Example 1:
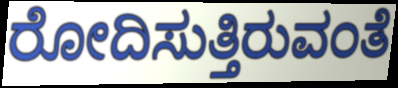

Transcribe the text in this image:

ರೋದಿಸುತ್ತಿರುವಂತೆ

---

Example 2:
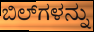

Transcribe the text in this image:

ಬಿಲ್‌ಗಳನ್ನು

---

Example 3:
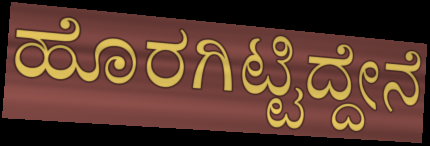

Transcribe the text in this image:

ಹೊರಗಿಟ್ಟಿದ್ದೇನೆ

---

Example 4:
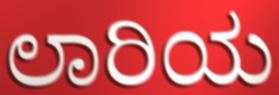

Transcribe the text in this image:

ಲಾರಿಯ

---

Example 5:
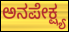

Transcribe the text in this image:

ಅನಪೇಕ್ಷ್ಯ